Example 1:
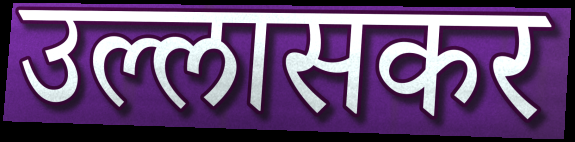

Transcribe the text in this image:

उल्लासकर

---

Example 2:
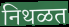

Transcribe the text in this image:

निथळत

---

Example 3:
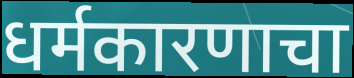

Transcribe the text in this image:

धर्मकारणाचा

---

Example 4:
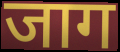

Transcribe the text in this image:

जाग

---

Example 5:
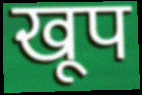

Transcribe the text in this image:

खूप